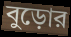
বুড়োর